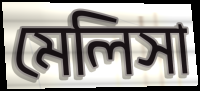
মেলিসা